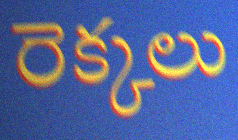
రెక్కలు